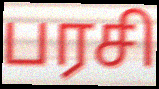
பரசி